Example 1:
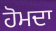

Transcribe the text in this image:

ਹੋਮਦਾ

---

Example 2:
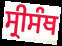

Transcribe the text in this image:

ਸ੍ਰੀਸੰਥ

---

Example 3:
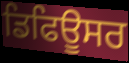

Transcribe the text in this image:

ਡਿਫਿਊਸਰ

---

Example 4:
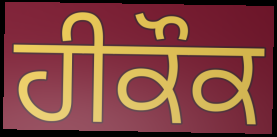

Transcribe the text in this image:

ਹੀਕੌਕ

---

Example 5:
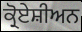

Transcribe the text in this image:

ਕ੍ਰੋਏਸ਼ੀਅਨ